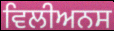
ਵਿਲੀਅਨਸ